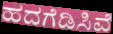
ಹದಗೆಡಿಸಿವೆ